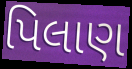
પિલાણ